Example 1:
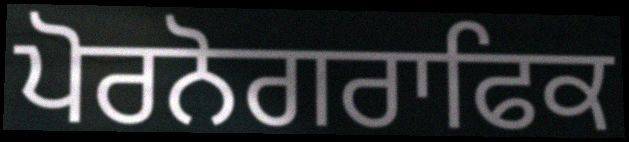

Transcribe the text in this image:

ਪੋਰਨੋਗਰਾਫਿਕ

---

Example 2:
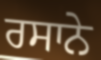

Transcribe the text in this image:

ਰਸਾਨੇ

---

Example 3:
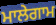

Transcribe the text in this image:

ਮਾਲੇਗਾਮ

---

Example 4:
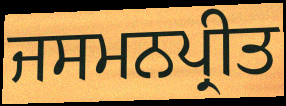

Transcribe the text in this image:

ਜਸਮਨਪ੍ਰੀਤ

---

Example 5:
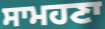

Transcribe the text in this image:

ਸਾਮਹਣਾ